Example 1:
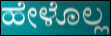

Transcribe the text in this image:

ಹೇಳೊಲ್ಲ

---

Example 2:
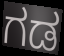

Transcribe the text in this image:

ಗಡ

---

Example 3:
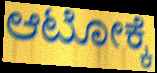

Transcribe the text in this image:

ಆಟೋಕ್ಕೆ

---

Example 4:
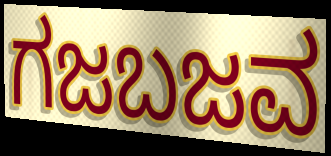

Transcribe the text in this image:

ಗಜಬಜವ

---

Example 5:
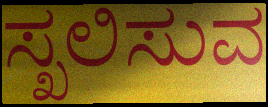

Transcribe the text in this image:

ಸ್ಖಲಿಸುವ